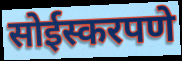
सोईस्करपणे